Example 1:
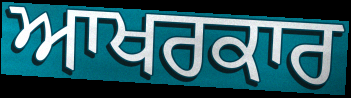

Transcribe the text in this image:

ਆਖਰਕਾਰ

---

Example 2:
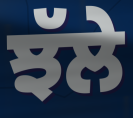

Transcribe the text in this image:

ਝੱਲੇ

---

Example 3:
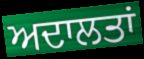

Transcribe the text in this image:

ਅਦਾਲਤਾਂ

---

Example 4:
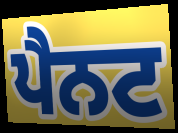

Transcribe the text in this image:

ਪੈਨਟ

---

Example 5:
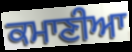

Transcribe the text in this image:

ਕਮਾਣੀਆ